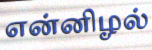
என்னிழல்